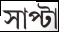
সাপ্টা